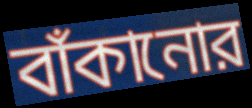
বাঁকানোর